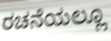
ರಚನೆಯಲ್ಲೂ